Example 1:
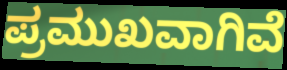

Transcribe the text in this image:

ಪ್ರಮುಖವಾಗಿವೆ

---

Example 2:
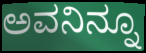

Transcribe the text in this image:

ಅವನಿನ್ನೂ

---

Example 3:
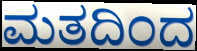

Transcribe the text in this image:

ಮತದಿಂದ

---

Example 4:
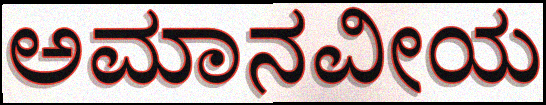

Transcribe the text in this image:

ಅಮಾನವೀಯ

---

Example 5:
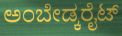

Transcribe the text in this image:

ಅಂಬೇಡ್ಕರೈಟ್